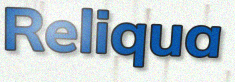
Reliqua